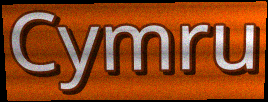
Cymru